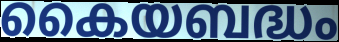
കൈയബദ്ധം